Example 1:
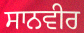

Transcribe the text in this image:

ਸਾਨਵੀਰ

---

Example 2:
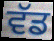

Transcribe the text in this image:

ਵੱਡ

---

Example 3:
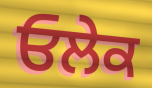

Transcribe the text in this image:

ਓਲੇਕ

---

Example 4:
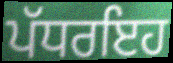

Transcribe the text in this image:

ਪੱਧਰਇਹ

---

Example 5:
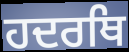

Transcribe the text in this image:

ਹਦਰਥਿ